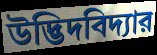
উদ্ভিদবিদ্যার